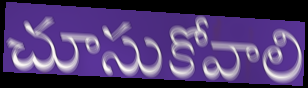
చూసుకోవాలి